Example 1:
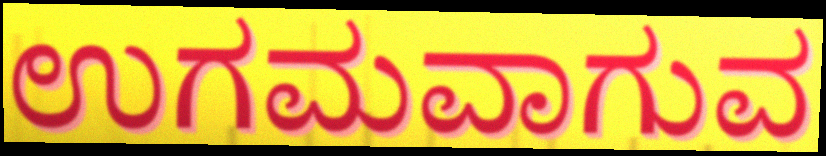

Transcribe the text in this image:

ಉಗಮವಾಗುವ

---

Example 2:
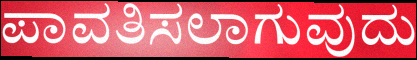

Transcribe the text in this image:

ಪಾವತಿಸಲಾಗುವುದು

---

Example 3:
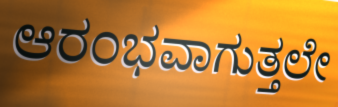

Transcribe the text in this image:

ಆರಂಭವಾಗುತ್ತಲೇ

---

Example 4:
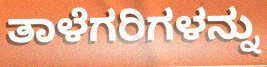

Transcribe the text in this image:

ತಾಳೆಗರಿಗಳನ್ನು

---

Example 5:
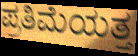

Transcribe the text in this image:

ಪ್ರತಿಮೆಯತ್ತ